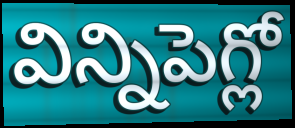
విన్నిపెగ్లో